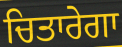
ਚਿਤਾਰੇਗਾ